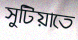
সুটিয়াতে